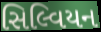
સિલ્વિયન